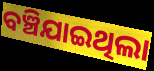
ବଞ୍ଚିଯାଇଥିଲା